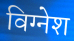
विग्‍नेश